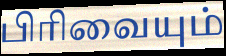
பிரிவையும்